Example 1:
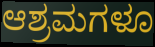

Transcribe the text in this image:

ಆಶ್ರಮಗಳೂ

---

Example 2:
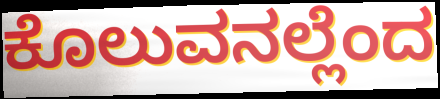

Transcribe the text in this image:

ಕೊಲುವನಲ್ಲೆಂದ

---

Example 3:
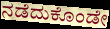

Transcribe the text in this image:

ನಡೆದುಕೊಂಡೇ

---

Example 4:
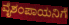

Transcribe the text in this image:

ವೈಶಂಪಾಯನಿಗೆ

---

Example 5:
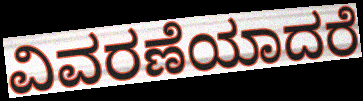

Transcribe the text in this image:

ವಿವರಣೆಯಾದರೆ